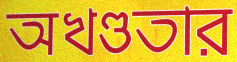
অখণ্ডতার